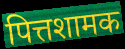
पित्तशामक